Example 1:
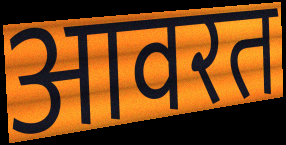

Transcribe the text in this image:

आवरत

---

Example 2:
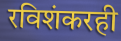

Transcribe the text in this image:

रविशंकरही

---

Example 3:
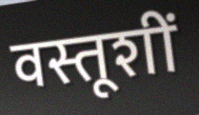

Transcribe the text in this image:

वस्तूशीं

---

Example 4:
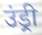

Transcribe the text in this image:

उंड्री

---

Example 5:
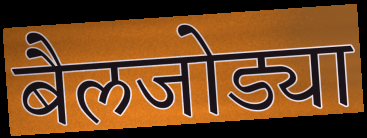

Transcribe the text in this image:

बैलजोड्या